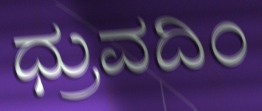
ಧ್ರುವದಿಂ